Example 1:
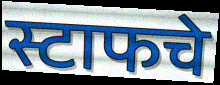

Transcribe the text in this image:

स्टाफचे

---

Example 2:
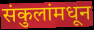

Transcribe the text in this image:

संकुलांमधून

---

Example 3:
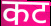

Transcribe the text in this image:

कट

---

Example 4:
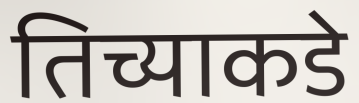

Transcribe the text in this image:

तिच्याकडे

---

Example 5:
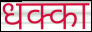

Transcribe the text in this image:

धक्का